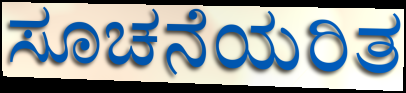
ಸೂಚನೆಯರಿತ